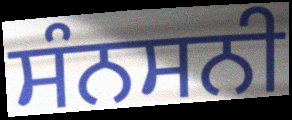
ਸੰਨਸਨੀ